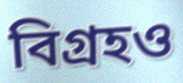
বিগ্রহও